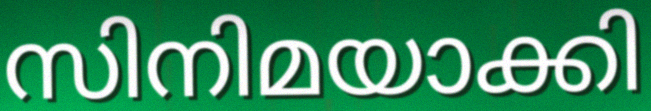
സിനിമയാക്കി